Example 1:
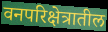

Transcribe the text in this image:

वनपरिक्षेत्रातील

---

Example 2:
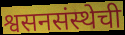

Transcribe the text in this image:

श्वसनसंस्थेची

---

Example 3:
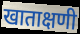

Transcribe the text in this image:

खाताक्षणी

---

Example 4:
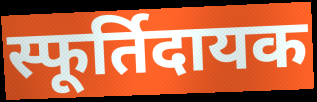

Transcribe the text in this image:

स्फूर्तिदायक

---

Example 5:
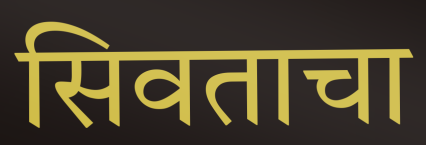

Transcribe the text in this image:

सिवताचा